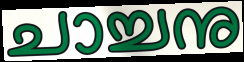
ചാച്ചനു